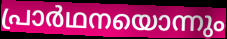
പ്രാർഥനയൊന്നും